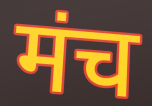
मंच